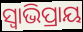
ସ୍ଵାଭିପ୍ରାୟ